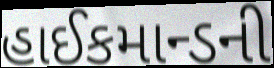
હાઈકમાન્ડની